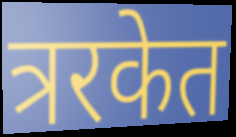
त्ररकेत